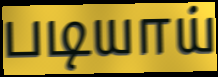
படியாய்